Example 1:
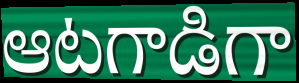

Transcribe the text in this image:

ఆటగాడిగా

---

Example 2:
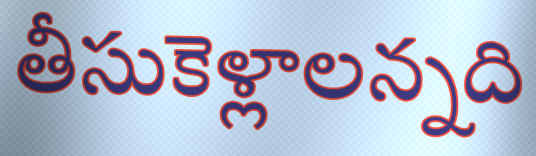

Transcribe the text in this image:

తీసుకెళ్లాలన్నది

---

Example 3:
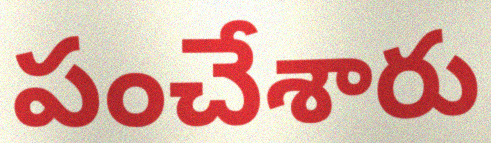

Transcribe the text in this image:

పంచేశారు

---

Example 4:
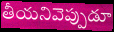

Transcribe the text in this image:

తీయనివెప్పుడూ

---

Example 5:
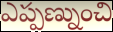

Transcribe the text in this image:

ఎప్పణ్నుంచి